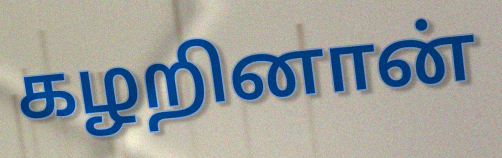
கழறினான்